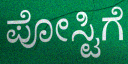
ಪೋಸ್ಟಿಗೆ